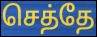
செத்தே